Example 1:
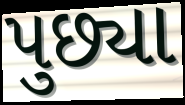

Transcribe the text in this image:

પુછ્યા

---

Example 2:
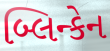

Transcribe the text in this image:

બ્લિન્કેન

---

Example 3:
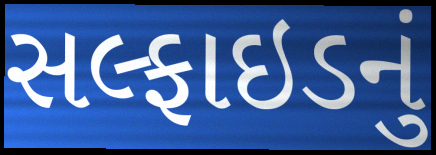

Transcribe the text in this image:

સલ્ફાઇડનું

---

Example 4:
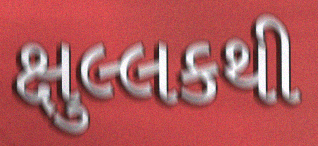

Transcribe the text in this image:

ક્ષુલ્લકથી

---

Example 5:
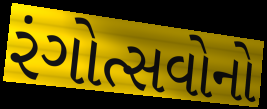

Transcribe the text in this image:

રંગોત્સવોનો